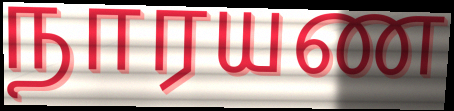
நாரயண